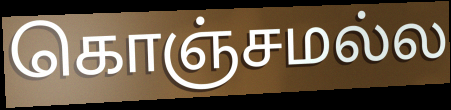
கொஞ்சமல்ல